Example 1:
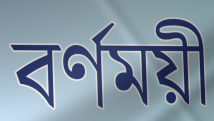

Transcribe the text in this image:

বর্ণময়ী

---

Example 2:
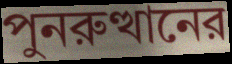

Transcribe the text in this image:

পুনরুত্থানের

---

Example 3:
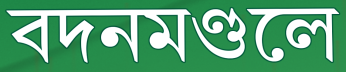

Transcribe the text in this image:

বদনমণ্ডলে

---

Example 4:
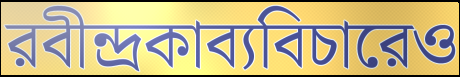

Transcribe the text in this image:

রবীন্দ্রকাব্যবিচারেও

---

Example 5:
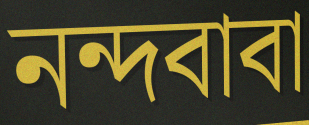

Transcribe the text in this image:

নন্দবাবা